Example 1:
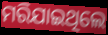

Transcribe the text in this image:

ମରିଯାଇଥିଲେ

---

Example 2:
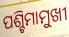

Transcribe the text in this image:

ପଶ୍ଚିମାମୁଖୀ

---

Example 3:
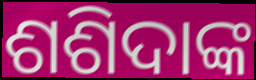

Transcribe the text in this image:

ଶଶିଦାଙ୍କ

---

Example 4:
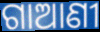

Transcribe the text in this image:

ଗାଆଣୀ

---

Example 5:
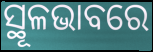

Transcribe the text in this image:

ସ୍ଥୂଳଭାବରେ